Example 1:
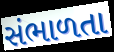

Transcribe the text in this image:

સંભાળતા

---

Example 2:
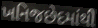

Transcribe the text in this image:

ખનિજછેદમાંથી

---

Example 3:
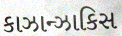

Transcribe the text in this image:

કાઝાન્ઝાકિસ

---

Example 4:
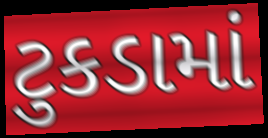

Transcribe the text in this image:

ટુકડામાં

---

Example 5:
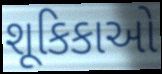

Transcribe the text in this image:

શૂકિકાઓ